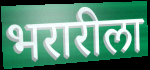
भरारीला